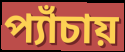
প্যাঁচায়